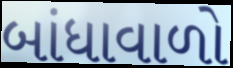
બાંધાવાળો